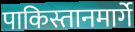
पाकिस्तानमार्गे